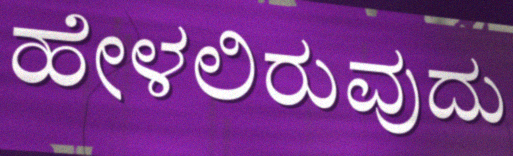
ಹೇಳಲಿರುವುದು